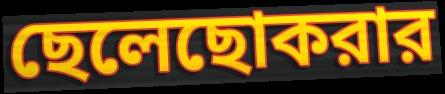
ছেলেছোকরার